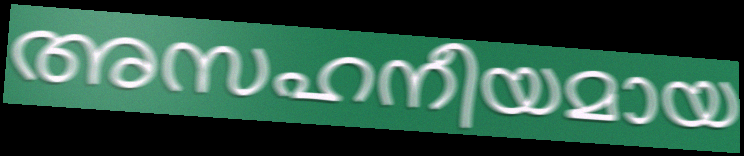
അസഹനീയമായ